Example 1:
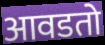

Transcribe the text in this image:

आवडतो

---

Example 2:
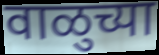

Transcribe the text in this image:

वाळुच्या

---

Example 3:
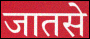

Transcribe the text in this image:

जातसे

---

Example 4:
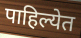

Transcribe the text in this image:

पाहिल्येत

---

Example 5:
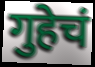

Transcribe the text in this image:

गुहेचं